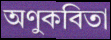
অণুকবিতা